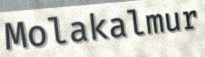
Molakalmur